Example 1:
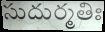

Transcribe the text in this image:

సుదుర్మతిః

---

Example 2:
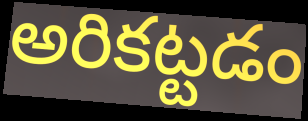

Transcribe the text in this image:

అరికట్టడం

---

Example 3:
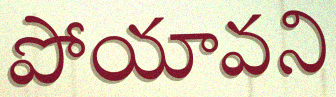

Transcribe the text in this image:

పోయావని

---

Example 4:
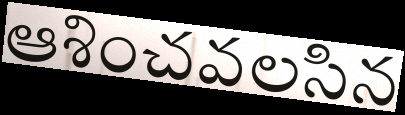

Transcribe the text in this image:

ఆశించవలసిన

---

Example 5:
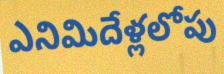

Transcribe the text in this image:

ఎనిమిదేళ్లలోపు